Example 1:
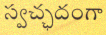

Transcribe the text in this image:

స్వచ్ఛదంగా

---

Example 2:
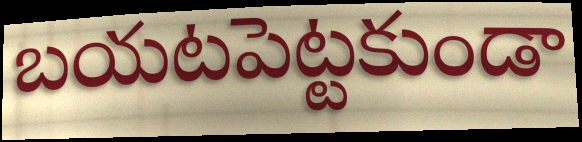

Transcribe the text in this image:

బయటపెట్టకుండా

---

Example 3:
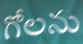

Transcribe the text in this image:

గోలను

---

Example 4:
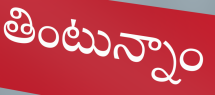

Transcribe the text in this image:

తింటున్నాం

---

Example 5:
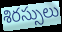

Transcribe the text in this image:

శిరస్సులు